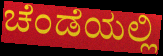
ಚೆಂಡೆಯಲ್ಲಿ